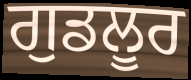
ਗੁਡਲੂਰ